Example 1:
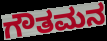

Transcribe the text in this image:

ಗೌತಮನ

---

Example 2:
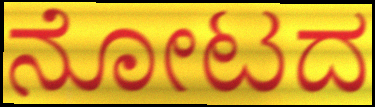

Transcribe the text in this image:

ನೋಟದ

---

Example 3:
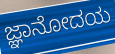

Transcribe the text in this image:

ಜ್ಞಾನೋದಯ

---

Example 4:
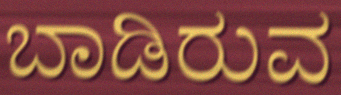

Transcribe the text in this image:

ಬಾಡಿರುವ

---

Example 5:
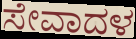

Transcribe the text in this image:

ಸೇವಾದಳ